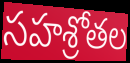
సహశ్రోతల